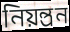
নিয়ন্ত্ৰন